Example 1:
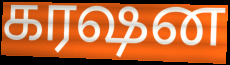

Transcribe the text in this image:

கரஷன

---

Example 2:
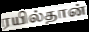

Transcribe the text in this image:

ரயில்தான்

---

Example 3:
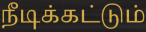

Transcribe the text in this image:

நீடிக்கட்டும்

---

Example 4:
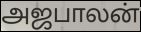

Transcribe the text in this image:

அஜபாலன்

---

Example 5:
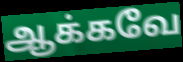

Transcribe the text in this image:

ஆக்கவே